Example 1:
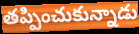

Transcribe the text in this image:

తప్పించుకున్నాడు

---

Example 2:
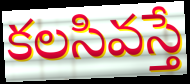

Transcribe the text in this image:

కలసివస్తే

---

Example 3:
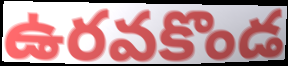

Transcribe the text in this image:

ఉరవకొండ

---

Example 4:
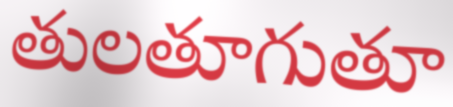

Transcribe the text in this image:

తులతూగుతూ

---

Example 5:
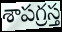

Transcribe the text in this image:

శాపగ్రస్త